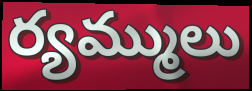
ర్యమ్ములు